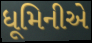
ધૂમિનીએ